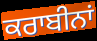
ਕਰਾਬੀਨਾਂ